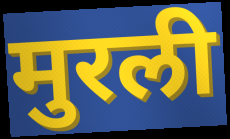
मुरली